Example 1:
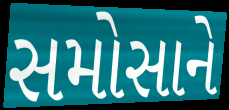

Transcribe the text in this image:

સમોસાને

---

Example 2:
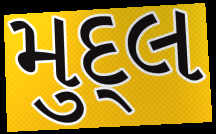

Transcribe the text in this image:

મુદ્લ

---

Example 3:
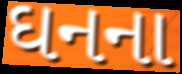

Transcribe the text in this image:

ઘનના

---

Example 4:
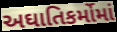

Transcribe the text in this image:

અઘાતિકર્મોમાં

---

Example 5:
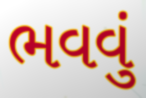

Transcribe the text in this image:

ભવવું